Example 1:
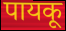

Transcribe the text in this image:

पायकू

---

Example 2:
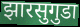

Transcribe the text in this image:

झारसुगुडा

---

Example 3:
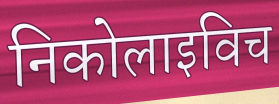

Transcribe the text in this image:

निकोलाइविच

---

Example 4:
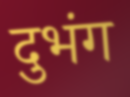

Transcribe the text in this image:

दुभंग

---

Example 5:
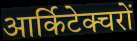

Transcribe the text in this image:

आर्किटेक्चरों